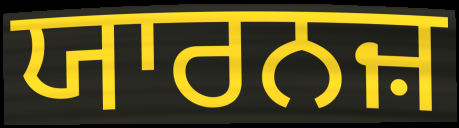
ਯਾਰਨਜ਼